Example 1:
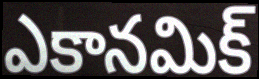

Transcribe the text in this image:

ఎకానమిక్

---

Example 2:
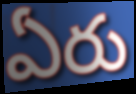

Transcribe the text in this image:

ఏరు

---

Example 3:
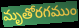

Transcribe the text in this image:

మృతోరగముం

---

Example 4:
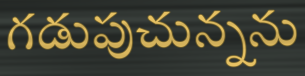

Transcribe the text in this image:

గడుపుచున్నను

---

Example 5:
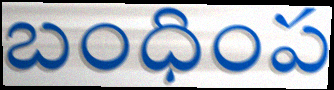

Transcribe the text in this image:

బంధింప